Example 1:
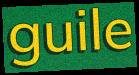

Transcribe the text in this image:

guile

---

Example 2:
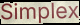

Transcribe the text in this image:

Simplex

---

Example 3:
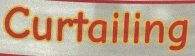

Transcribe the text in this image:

Curtailing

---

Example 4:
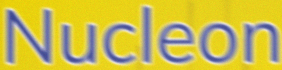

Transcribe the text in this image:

Nucleon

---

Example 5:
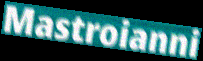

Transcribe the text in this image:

Mastroianni